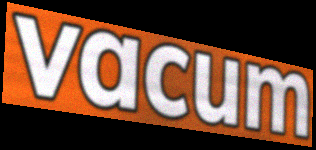
vacum